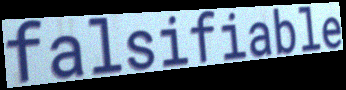
falsifiable